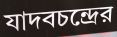
যাদবচন্দ্রের